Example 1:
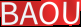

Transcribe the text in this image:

BAOU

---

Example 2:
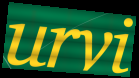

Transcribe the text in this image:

urvi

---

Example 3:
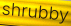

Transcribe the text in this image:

shrubby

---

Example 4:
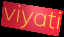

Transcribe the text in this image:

viyati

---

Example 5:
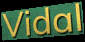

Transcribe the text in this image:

Vidal